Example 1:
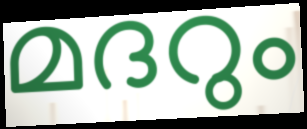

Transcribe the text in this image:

മദറും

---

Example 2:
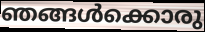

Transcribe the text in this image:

ഞങ്ങൾക്കൊരു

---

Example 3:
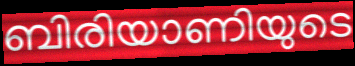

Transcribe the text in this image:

ബിരിയാണിയുടെ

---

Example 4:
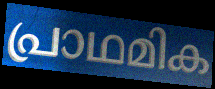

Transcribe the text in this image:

പ്രാഥമിക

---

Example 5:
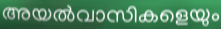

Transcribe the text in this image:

അയൽവാസികളെയും